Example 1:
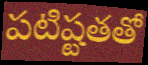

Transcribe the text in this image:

పటిష్టతతో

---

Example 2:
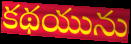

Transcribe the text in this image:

కథయును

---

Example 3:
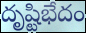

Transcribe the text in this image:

దృష్టిభేదం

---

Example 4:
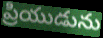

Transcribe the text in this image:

ప్రియుడును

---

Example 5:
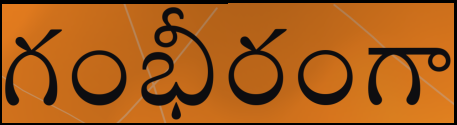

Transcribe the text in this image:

గంభీరంగా